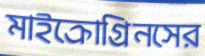
মাইক্রোগ্রিনসের